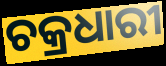
ଚକ୍ରଧାରୀ